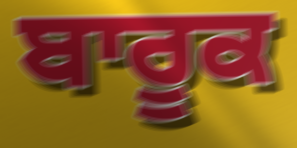
ਬਾਰੂਕ